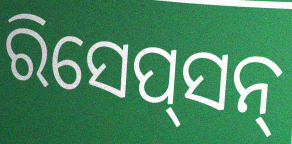
ରିସେପ୍‍ସନ୍